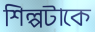
শিল্পটাকে